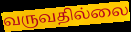
வருவதில்லை